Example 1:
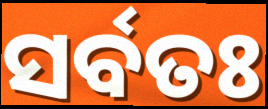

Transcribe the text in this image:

ସର୍ବତଃ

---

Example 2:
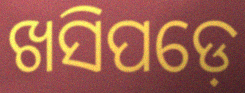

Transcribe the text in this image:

ଖସିପଡ଼େ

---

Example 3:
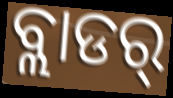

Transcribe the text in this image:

ବ୍ଲାଡର୍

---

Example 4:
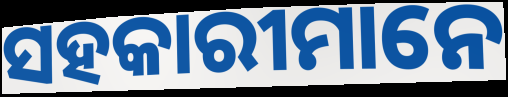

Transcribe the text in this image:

ସହକାରୀମାନେ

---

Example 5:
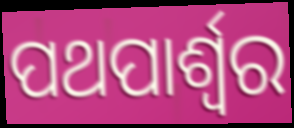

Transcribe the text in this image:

ପଥପାର୍ଶ୍ଵର